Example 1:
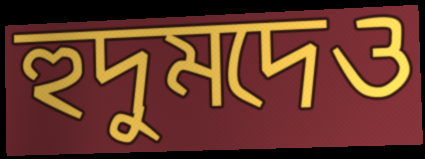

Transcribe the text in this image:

হুদুমদেও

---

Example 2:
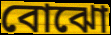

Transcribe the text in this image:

বোঝো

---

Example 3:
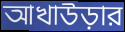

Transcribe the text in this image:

আখাউড়ার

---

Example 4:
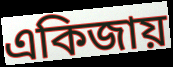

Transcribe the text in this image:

একিজায়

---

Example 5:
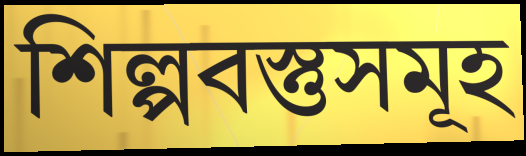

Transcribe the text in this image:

শিল্পবস্তুসমূহ